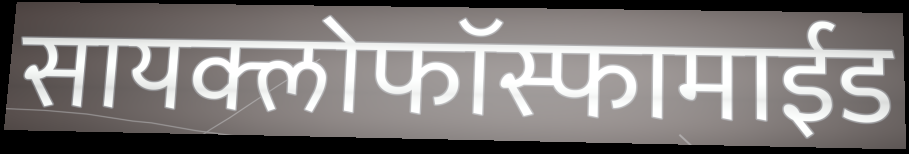
सायक्लोफॉस्फामाईड